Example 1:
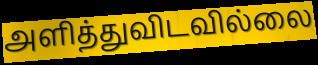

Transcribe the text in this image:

அளித்துவிடவில்லை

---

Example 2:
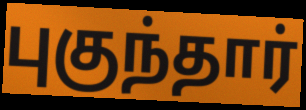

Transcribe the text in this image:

புகுந்தார்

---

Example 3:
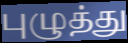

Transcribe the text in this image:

புழுத்து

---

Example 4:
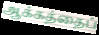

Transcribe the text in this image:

ஆக்கத்தைப்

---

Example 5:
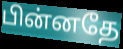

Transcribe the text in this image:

பின்னதே